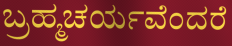
ಬ್ರಹ್ಮಚರ್ಯವೆಂದರೆ